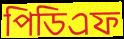
পিডিএফ